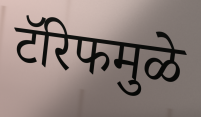
टॅरिफमुळे